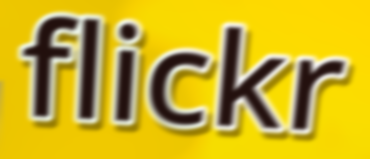
flickr